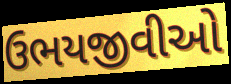
ઉભયજીવીઓ